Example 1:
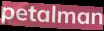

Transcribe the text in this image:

petalman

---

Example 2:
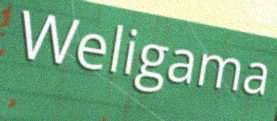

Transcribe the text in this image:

Weligama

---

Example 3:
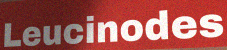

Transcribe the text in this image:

Leucinodes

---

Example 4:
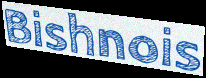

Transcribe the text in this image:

Bishnois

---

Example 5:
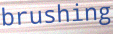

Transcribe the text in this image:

brushing